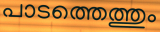
പാടത്തെത്തും